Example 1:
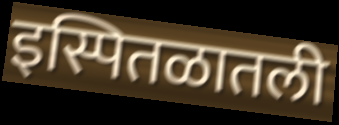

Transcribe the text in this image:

इस्पितळातली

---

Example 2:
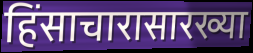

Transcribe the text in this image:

हिंसाचारासारख्या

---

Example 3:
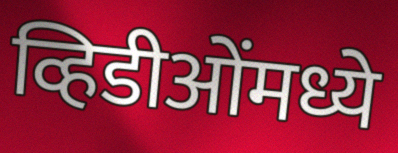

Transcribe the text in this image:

व्हिडीओंमध्ये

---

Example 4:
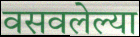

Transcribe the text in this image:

वसवलेल्या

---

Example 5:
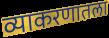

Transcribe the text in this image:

व्याकरणातला